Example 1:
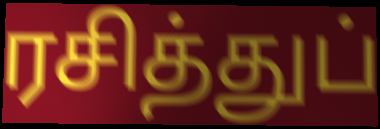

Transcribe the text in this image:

ரசித்துப்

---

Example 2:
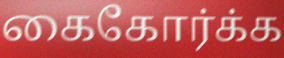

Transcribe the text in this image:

கைகோர்க்க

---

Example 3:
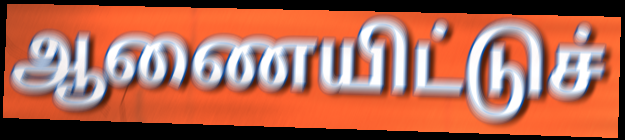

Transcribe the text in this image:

ஆணையிட்டுச்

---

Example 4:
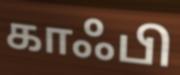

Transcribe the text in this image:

காஃபி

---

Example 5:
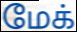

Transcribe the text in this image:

மேக்